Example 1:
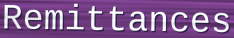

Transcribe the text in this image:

Remittances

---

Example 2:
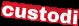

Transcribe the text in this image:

custodi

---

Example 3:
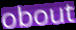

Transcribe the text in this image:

obout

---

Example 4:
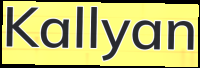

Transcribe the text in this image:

Kallyan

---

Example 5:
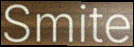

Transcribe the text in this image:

Smite